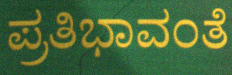
ಪ್ರತಿಭಾವಂತೆ